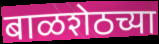
बाळशेठच्या